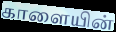
காளையின்